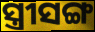
ସ୍ତ୍ରୀସଙ୍ଗ